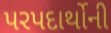
પરપદાર્થોની